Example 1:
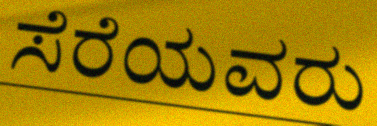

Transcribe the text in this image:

ಸೆರೆಯವರು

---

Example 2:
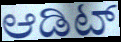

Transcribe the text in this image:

ಆಡಿಟ್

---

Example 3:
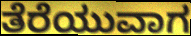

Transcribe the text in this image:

ತೆರೆಯುವಾಗ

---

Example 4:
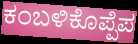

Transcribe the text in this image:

ಕಂಬಳಿಕೊಪ್ಪೆಪ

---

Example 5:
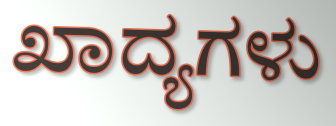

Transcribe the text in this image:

ಖಾದ್ಯಗಳು